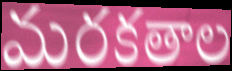
మరకతాల